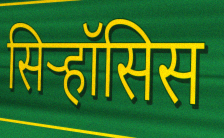
सिऱ्हॉसिस